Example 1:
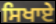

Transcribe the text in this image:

ਸਿਖਾਏ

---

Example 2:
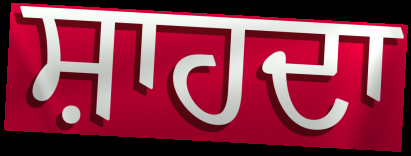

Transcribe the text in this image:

ਸ਼ਾਹਦਾ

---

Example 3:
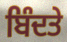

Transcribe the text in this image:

ਬਿੰਦਤੇ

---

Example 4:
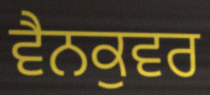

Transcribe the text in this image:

ਵੈਨਕੁਵਰ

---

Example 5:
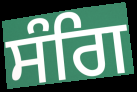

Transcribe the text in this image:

ਸੰਗਿ